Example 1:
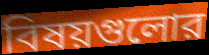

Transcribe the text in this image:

বিষয়গুলোর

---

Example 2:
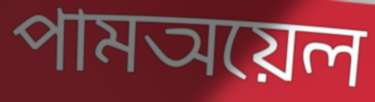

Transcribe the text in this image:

পামঅয়েল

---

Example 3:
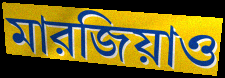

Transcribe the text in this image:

মারজিয়াও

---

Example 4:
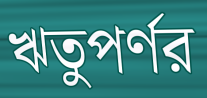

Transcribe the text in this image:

ঋতুপর্ণর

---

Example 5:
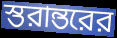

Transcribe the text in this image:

স্তরান্তরের